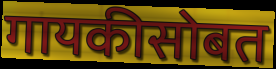
गायकीसोबत